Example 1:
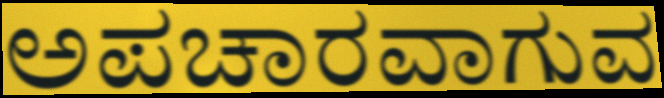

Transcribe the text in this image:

ಅಪಚಾರವಾಗುವ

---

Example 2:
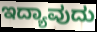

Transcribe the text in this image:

ಇದ್ಯಾವುದು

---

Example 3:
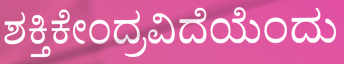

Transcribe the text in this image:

ಶಕ್ತಿಕೇಂದ್ರವಿದೆಯೆಂದು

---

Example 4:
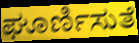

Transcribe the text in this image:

ಘೂರ್ಣಿಸುತೆ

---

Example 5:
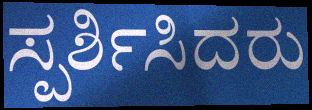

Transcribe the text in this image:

ಸ್ಪರ್ಶಿಸಿದರು